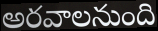
అరవాలనుంది